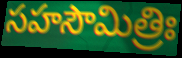
సహసౌమిత్రిః